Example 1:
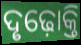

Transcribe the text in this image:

ଦୃଢ଼ୋକ୍ତି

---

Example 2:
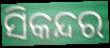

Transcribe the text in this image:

ସିକନ୍ଦର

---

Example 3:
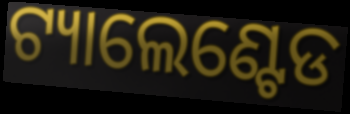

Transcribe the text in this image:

ଟ୍ୟାଲେଣ୍ଟେଡ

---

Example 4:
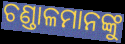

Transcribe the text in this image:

ଚଣ୍ଡାଳମାନଙ୍କୁ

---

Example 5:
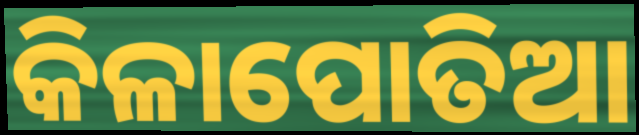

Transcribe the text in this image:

କିଳାପୋତିଆ